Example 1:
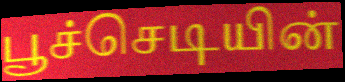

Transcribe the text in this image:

பூச்செடியின்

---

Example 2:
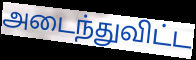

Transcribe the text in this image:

அடைந்துவிட்ட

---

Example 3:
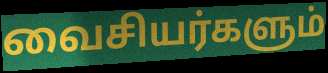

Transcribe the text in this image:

வைசியர்களும்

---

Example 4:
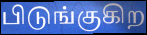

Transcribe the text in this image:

பிடுங்குகிற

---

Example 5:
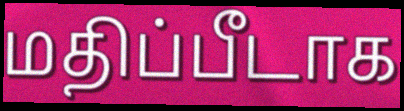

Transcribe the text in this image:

மதிப்பீடாக